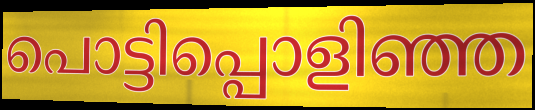
പൊട്ടിപ്പൊളിഞ്ഞ